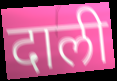
दाली